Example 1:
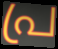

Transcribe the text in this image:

പ്ര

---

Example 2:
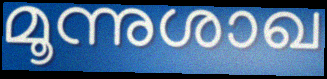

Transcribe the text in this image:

മൂന്നുശാഖ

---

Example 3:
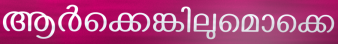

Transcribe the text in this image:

ആർക്കെങ്കിലുമൊക്കെ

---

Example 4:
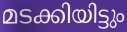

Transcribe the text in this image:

മടക്കിയിട്ടും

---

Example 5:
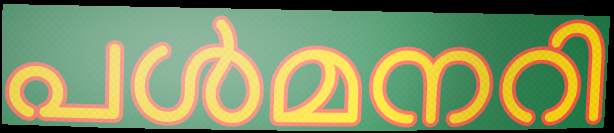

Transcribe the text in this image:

പൾമനറി